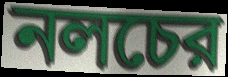
নলচের